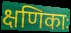
क्षणिकाः